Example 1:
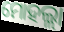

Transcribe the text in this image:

ମୋହଲ୍ଲା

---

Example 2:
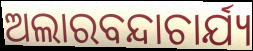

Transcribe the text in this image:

ଅଲାରବନ୍ଦାଚାର୍ଯ୍ୟ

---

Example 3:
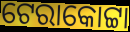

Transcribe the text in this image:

ଟେରାକୋଟ୍ଟା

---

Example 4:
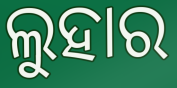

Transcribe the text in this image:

ଲୁହାର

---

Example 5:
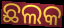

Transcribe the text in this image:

ଛଲକ